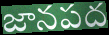
జానపద